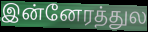
இன்னேரத்துல